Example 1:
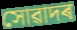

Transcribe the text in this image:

সোৱাদৰ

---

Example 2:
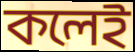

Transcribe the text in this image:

কলেই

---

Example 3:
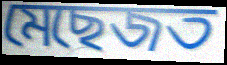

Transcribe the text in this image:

মেছেজত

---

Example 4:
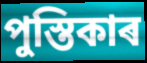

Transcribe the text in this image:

পুস্তিকাৰ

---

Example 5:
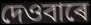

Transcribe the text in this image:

দেওবাৰে